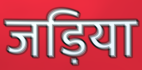
जड़िया